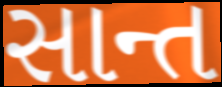
સાન્ત